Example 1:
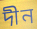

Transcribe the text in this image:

দীন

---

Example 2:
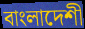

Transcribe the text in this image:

বাংলাদেশী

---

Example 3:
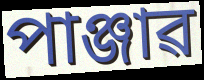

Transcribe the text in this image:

পাঞ্জাৱ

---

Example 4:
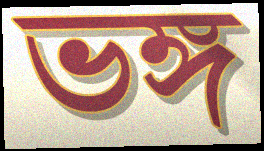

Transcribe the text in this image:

ভঙ্গ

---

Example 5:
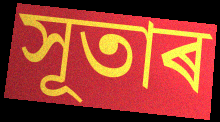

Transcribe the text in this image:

সূতাৰ